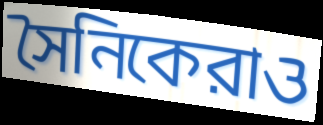
সৈনিকেরাও